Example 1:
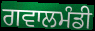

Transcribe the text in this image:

ਗਵਾਲਮੰਡੀ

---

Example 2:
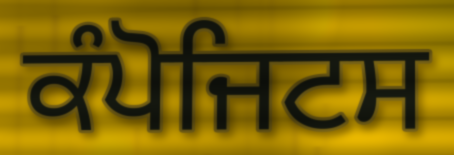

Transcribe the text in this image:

ਕੰਪੋਜਿਟਸ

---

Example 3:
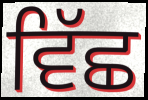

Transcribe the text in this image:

ਵਿੱਛ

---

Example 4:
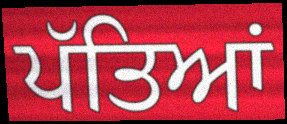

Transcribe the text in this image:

ਪੱਤਿਆਂ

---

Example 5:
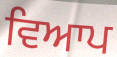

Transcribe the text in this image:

ਵਿਆਪ